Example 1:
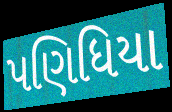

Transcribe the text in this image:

પણિધિયા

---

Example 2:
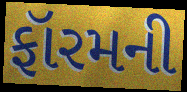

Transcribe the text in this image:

ફૉરમની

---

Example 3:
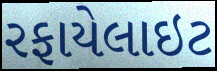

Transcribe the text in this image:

રફાયેલાઇટ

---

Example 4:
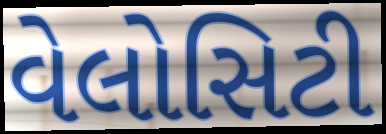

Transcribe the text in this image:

વેલોસિટી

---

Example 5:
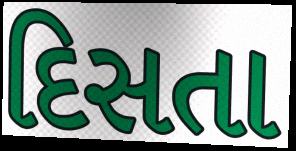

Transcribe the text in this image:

દિસતા